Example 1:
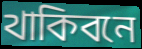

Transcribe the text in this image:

থাকিবনে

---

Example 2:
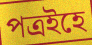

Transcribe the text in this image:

পত্ৰইহে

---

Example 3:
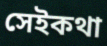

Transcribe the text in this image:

সেইকথা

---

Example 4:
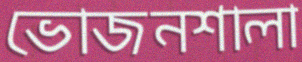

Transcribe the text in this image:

ভোজনশালা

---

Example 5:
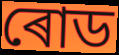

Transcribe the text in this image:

ৰোড